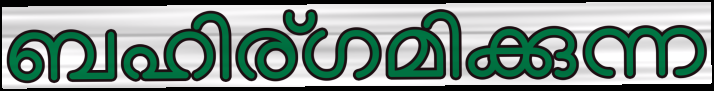
ബഹിര്ഗമിക്കുന്ന